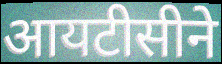
आयटीसीने